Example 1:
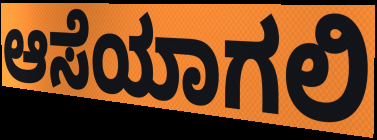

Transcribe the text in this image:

ಆಸೆಯಾಗಲಿ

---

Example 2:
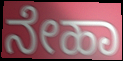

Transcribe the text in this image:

ನೇಹಾ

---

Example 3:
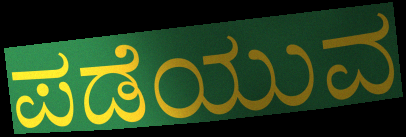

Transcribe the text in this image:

ಪಡೆಯುವ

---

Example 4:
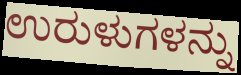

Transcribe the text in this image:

ಉರುಳುಗಳನ್ನು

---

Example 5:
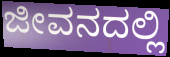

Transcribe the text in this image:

ಜೀವನದಲ್ಲಿ